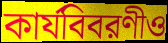
কার্যবিবরণীও